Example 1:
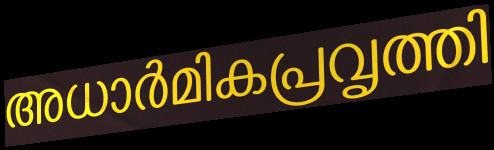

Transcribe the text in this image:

അധാർമികപ്രവൃത്തി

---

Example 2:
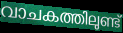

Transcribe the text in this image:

വാചകത്തിലുണ്ട്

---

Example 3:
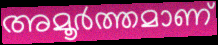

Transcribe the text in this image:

അമൂർത്തമാണ്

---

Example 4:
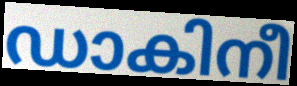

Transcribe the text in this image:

ഡാകിനീ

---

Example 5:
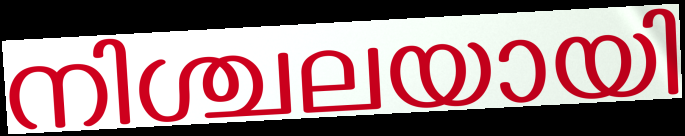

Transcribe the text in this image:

നിശ്ചലയായി